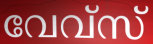
വേവ്സ്